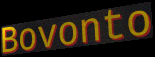
Bovonto